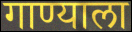
गाण्याला